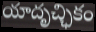
యాదృచ్ఛికం